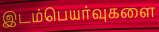
இடம்பெயர்வுகளை